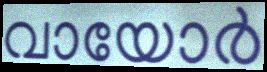
വായോർ